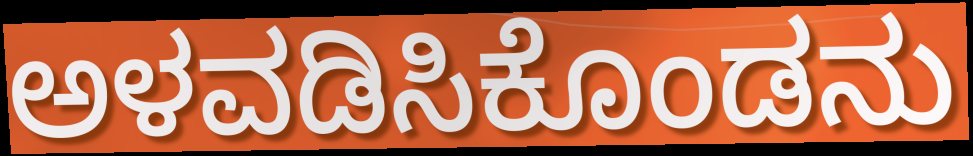
ಅಳವಡಿಸಿಕೊಂಡನು